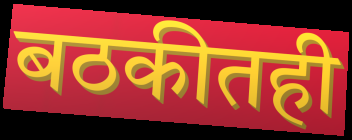
बठकीतही